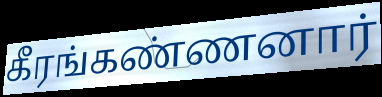
கீரங்கண்ணனார்